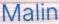
Malin